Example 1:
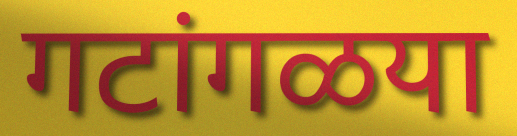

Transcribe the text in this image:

गटांगळया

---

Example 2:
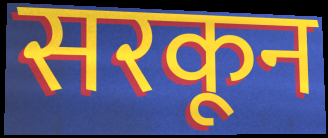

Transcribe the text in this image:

सरकून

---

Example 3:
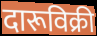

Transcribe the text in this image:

दारूविक्री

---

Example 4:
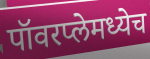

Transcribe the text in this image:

पॉवरप्लेमध्येच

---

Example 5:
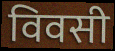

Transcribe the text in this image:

विवसी